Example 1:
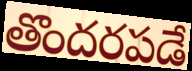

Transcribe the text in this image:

తొందరపడే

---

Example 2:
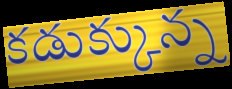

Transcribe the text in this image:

కడుక్కున్న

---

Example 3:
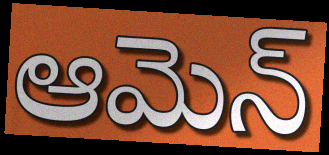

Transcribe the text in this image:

ఆమెన్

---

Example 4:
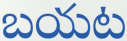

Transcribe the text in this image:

బయట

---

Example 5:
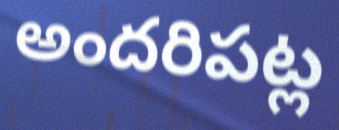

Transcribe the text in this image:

అందరిపట్ల